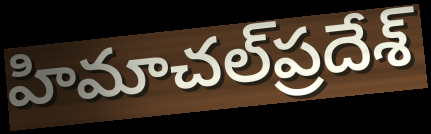
హిమాచల్‌ప్రదేశ్